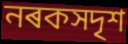
নৰকসদৃশ